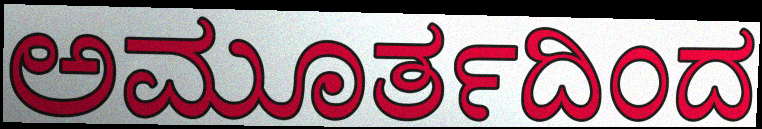
ಅಮೂರ್ತದಿಂದ